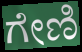
ಗೇಣಿ